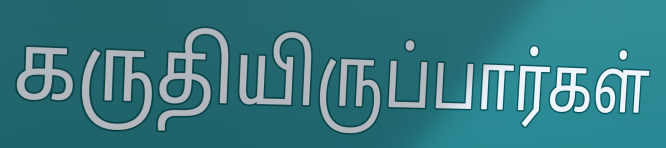
கருதியிருப்பார்கள்